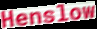
Henslow